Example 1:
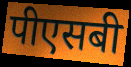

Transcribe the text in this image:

पीएसबी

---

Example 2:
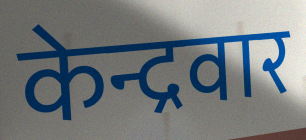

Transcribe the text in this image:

केन्‍द्रवार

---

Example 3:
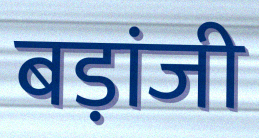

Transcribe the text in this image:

बड़ांजी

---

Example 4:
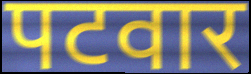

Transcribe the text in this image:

पटवार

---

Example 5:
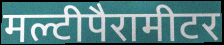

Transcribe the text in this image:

मल्टीपैरामीटर